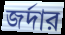
জর্দার